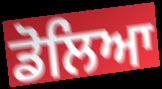
ਡੋਲਿਆ